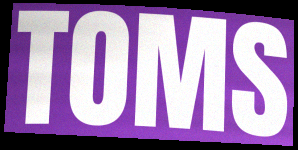
TOMS